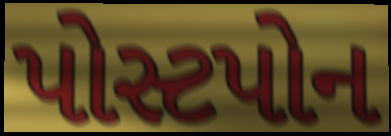
પોસ્ટપોન